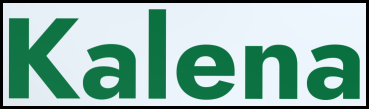
Kalena